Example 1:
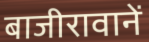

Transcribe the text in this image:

बाजीरावानें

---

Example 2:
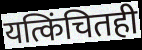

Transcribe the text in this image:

यत्किंचितही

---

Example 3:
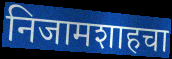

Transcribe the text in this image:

निजामशाहचा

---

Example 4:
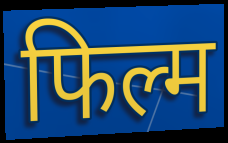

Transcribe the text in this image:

फिल्म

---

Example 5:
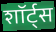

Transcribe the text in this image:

शॉर्ट्स